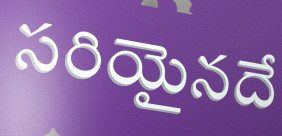
సరియైనదే